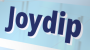
Joydip